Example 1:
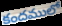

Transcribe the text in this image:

కందములో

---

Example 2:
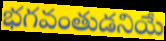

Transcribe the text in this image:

భగవంతుడనియే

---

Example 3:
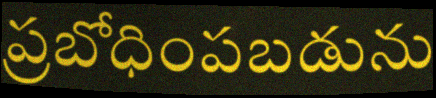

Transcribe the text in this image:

ప్రబోధింపబడును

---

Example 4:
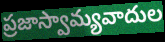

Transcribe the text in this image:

ప్రజాస్వామ్యవాదుల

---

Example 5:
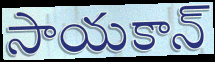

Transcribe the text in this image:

సాయకాన్